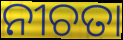
ନୀଚତା